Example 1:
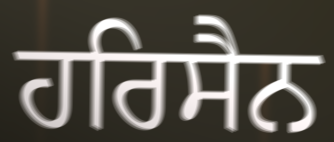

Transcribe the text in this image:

ਹਰਿਸੈਨ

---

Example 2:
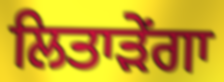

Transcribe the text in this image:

ਲਿਤਾੜੇਂਗਾ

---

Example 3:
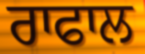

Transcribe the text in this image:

ਰਾਫਾਲ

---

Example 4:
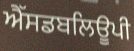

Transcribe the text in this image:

ਐੱਸਡਬਲਿਊਪੀ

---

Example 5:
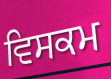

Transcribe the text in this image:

ਵਿਸਕਮ